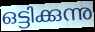
ഒട്ടിക്കുന്നു